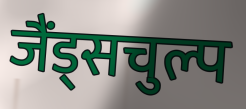
जैंड्सचुल्प